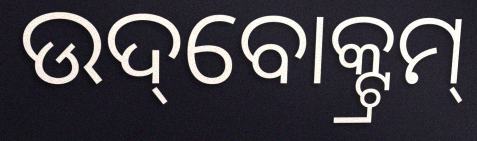
ଉଦ୍‌ବୋକ୍ଟ୍ରମ୍